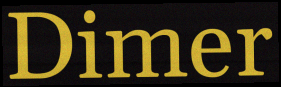
Dimer